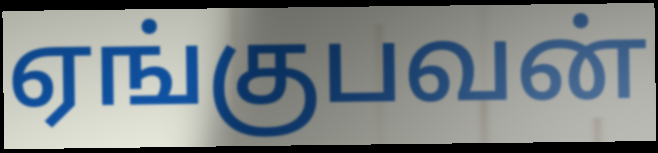
ஏங்குபவன்